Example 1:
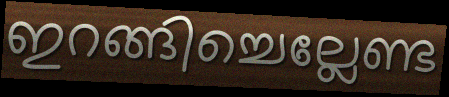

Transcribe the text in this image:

ഇറങ്ങിച്ചെല്ലേണ്ട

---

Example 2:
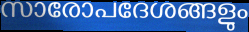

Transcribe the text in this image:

സാരോപദേശങ്ങളും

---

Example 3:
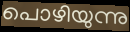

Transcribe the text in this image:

പൊഴിയുന്നു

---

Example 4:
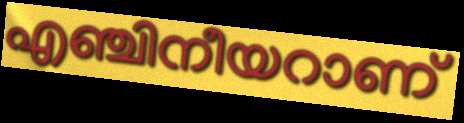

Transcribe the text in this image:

എഞ്ചിനീയറാണ്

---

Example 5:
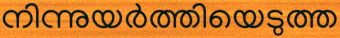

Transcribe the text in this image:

നിന്നുയർത്തിയെടുത്ത